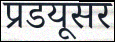
प्रडयूसर